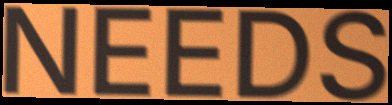
NEEDS